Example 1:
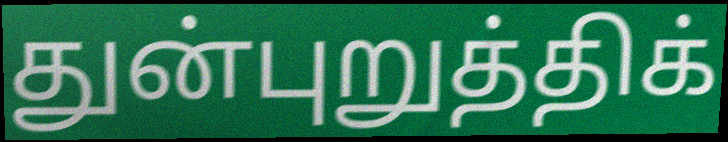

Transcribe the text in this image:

துன்புறுத்திக்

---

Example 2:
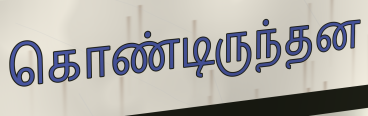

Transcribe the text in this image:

கொண்டிருந்தன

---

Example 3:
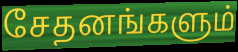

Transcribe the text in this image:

சேதனங்களும்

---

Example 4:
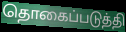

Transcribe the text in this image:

தொகைப்படுத்தி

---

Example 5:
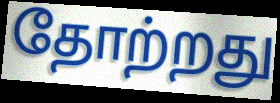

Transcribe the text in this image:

தோற்றது